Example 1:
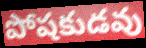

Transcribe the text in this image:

పోషకుడవు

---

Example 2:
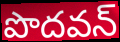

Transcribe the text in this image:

పొదవన్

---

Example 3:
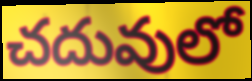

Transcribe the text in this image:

చదువులో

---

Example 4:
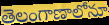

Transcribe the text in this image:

తెలంగాణాలోనూ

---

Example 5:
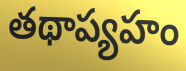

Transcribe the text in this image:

తథాప్యహం